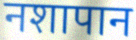
नशापान